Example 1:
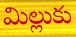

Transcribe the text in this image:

మిల్లుకు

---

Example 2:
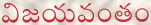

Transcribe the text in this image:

విజయవంతం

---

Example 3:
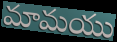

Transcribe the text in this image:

మామయు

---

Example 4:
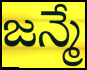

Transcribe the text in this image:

జన్మే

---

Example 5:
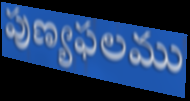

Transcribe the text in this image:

పుణ్యఫలము